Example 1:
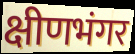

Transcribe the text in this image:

क्षीणभंगर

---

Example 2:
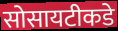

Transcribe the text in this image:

सोसायटीकडे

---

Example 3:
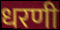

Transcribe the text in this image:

धरणी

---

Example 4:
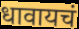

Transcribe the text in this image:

धावायचं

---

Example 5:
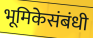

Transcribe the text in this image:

भूमिकेसंबंधी